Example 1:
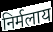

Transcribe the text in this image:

निर्मलाय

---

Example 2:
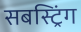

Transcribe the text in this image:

सबस्ट्रिंग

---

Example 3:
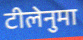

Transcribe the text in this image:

टीलेनुमा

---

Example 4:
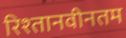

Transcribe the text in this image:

रिश्तानवीनतम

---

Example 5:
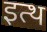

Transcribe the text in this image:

इत्थ